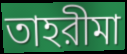
তাহরীমা